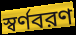
স্বর্ণবরণ